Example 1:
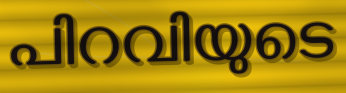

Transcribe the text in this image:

പിറവിയുടെ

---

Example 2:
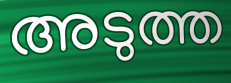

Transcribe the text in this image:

അടുത്ത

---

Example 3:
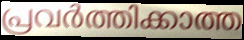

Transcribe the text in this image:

പ്രവർത്തിക്കാത്ത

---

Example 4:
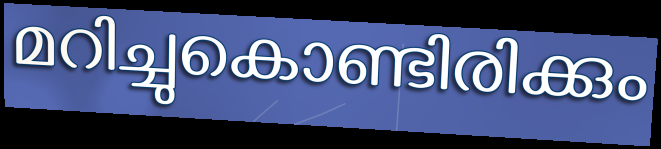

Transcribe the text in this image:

മറിച്ചുകൊണ്ടിരിക്കും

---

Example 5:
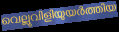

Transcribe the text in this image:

വെല്ലുവിളിയുയർത്തിയ